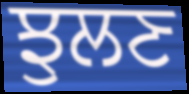
ਝੁਲਣ